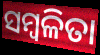
ସମ୍ବଳିତା